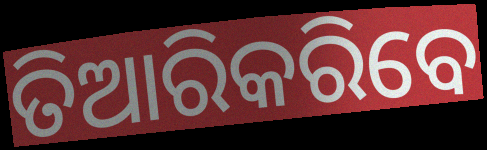
ତିଆରିକରିବେ